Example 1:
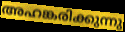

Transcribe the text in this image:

അഹങ്കരിക്കുന്നു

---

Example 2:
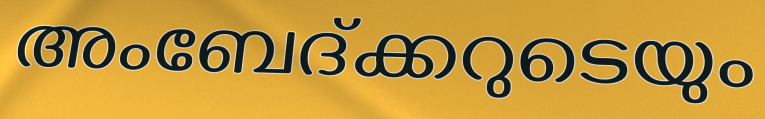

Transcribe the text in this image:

അംബേദ്ക്കറുടെയും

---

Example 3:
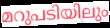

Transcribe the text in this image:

മറുപടിയിലും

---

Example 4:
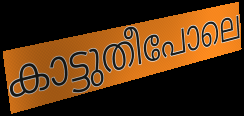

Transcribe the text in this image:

കാട്ടുതീപോലെ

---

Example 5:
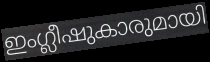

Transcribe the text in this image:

ഇംഗ്ലീഷുകാരുമായി